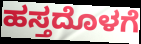
ಹಸ್ತದೊಳಗೆ